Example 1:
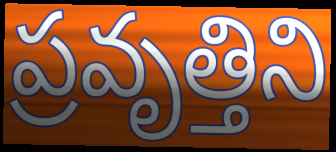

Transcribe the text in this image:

ప్రవృత్తిని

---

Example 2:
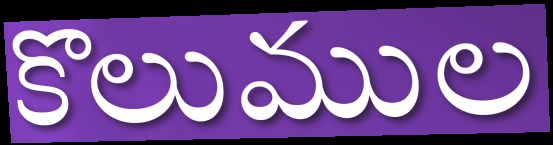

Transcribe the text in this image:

కొలుముల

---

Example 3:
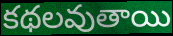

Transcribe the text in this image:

కథలవుతాయి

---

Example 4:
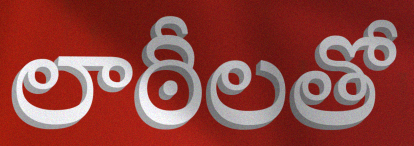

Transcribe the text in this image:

లాఠీలతో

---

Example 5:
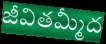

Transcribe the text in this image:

జీవితమ్మీద